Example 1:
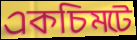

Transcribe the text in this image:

একচিমটে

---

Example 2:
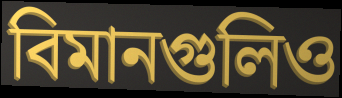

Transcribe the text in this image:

বিমানগুলিও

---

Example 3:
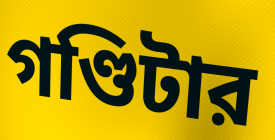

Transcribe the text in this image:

গণ্ডিটার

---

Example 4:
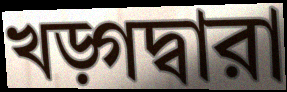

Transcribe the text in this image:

খড়্গদ্বারা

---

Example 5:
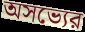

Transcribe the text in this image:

অসভ্যের